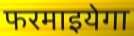
फरमाइयेगा